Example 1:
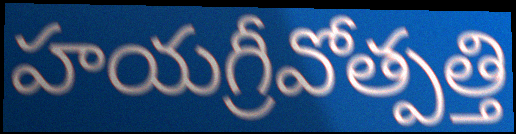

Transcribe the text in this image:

హయగ్రీవోత్పత్తి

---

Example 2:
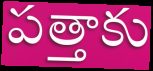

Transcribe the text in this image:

పత్తాకు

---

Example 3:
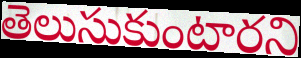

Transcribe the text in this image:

తెలుసుకుంటారని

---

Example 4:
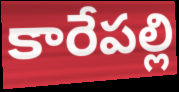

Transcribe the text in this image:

కారేపల్లి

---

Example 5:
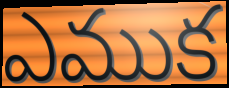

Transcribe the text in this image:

ఎముక